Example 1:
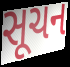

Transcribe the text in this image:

સૂચન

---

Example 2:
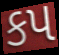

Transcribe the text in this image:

કપ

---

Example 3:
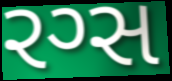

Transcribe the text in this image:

રગ્સ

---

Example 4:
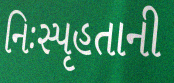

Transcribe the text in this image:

નિઃસ્પૃહતાની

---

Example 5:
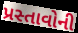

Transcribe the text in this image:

પ્રસ્તાવોની